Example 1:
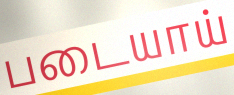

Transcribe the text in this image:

படையாய்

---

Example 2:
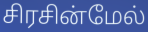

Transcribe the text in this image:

சிரசின்மேல்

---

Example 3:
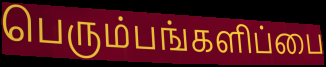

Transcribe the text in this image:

பெரும்பங்களிப்பை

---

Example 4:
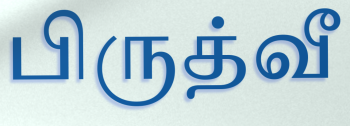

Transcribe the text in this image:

பிருத்வீ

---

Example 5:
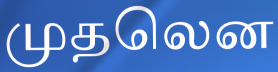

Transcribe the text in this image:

முதலென